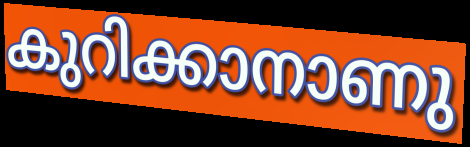
കുറിക്കാനാണു